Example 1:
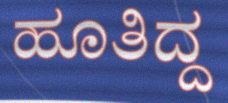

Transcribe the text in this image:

ಹೂತಿದ್ದ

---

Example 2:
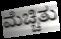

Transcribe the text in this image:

ಮೆಚ್ಚಿತು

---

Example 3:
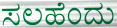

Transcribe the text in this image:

ಸಲಹೆಂದು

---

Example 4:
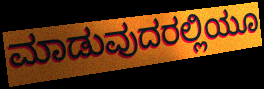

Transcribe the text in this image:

ಮಾಡುವುದರಲ್ಲಿಯೂ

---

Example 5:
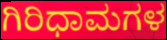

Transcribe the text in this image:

ಗಿರಿಧಾಮಗಳ